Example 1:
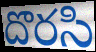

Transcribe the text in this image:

దొరసి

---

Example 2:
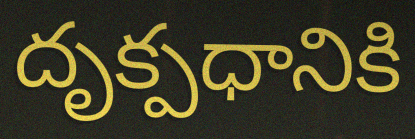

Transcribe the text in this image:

దృక్పధానికి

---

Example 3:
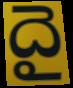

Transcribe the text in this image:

దై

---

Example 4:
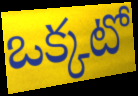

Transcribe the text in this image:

ఒక్కటో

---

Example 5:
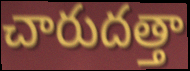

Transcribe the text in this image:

చారుదత్తా